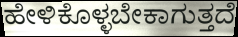
ಹೇಳಿಕೊಳ್ಳಬೇಕಾಗುತ್ತದೆ